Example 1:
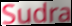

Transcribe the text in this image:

Sudra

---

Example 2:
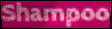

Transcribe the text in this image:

Shampoo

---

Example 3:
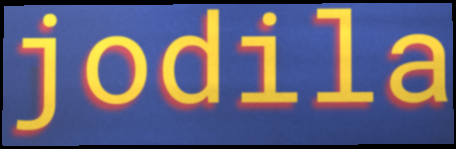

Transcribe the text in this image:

jodila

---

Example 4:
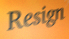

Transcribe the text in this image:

Resign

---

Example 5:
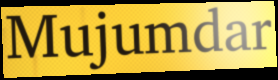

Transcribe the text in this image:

Mujumdar